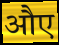
औए